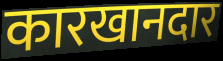
कारखानदार